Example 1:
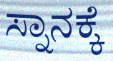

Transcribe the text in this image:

ಸ್ನಾನಕ್ಕೆ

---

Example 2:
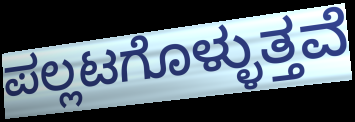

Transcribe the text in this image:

ಪಲ್ಲಟಗೊಳ್ಳುತ್ತವೆ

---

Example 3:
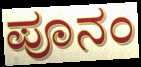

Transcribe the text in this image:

ಪೂನಂ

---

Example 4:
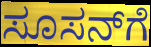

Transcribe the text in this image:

ಸೂಸನ್‌ಗೆ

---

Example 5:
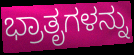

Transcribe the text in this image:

ಭ್ರಾತೃಗಳನ್ನು